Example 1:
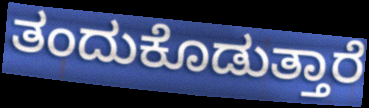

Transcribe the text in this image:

ತಂದುಕೊಡುತ್ತಾರೆ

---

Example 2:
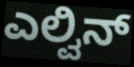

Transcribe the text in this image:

ಎಲ್ವಿನ್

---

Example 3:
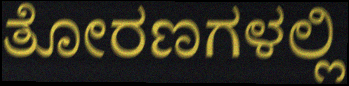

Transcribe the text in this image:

ತೋರಣಗಳಲ್ಲಿ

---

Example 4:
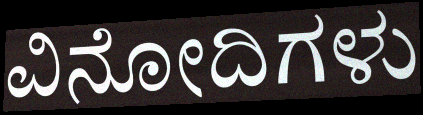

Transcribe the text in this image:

ವಿನೋದಿಗಳು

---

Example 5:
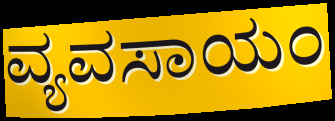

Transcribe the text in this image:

ವ್ಯವಸಾಯಂ